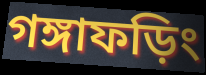
গঙ্গাফড়িং